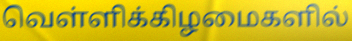
வெள்ளிக்கிழமைகளில்